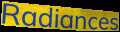
Radiances